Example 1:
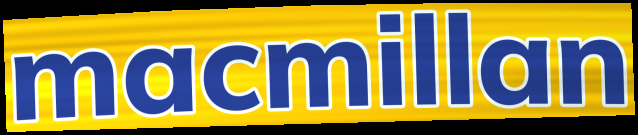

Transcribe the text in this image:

macmillan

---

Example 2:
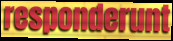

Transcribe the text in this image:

responderunt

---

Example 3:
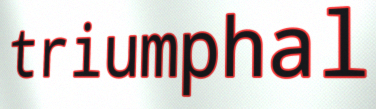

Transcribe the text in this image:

triumphal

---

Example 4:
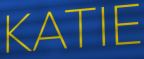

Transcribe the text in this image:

KATIE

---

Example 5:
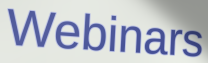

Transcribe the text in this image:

Webinars